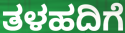
ತಳಹದಿಗೆ